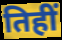
तिहीं